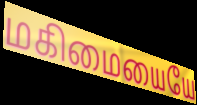
மகிமையையே